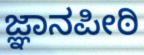
ಜ್ಞಾನಪೀಠಿ